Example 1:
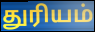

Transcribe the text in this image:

துரியம்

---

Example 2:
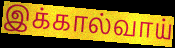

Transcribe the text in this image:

இக்கால்வாய்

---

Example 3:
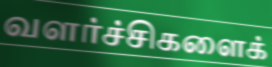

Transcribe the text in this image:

வளர்ச்சிகளைக்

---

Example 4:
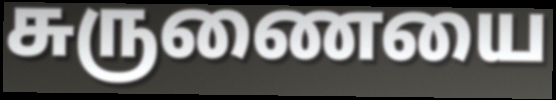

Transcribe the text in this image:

சுருணையை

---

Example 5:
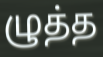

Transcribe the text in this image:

ழுத்த